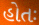
હોતઃ